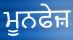
ਮੂਨਫੇਜ਼